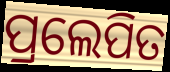
ପ୍ରଲେପିତ